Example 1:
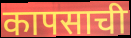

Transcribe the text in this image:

कापसाची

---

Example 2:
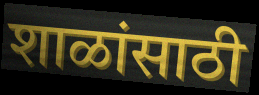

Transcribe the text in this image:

शाळांसाठी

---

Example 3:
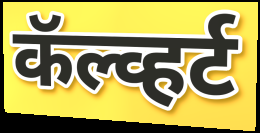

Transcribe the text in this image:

कॅल्व्हर्ट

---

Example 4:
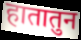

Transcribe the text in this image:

हातातुन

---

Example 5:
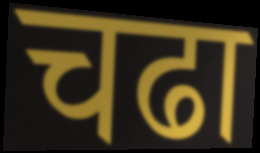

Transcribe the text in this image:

चढा